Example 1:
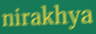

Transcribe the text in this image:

nirakhya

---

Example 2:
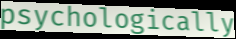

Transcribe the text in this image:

psychologically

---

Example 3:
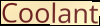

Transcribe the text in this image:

Coolant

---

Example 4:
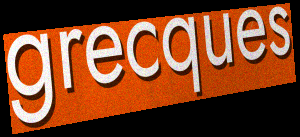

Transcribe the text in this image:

grecques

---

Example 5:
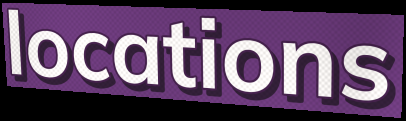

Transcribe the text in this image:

locations